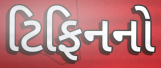
ટિફિનનો